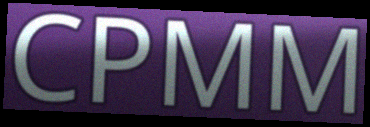
CPMM